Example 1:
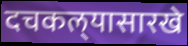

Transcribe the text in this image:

दचकल्यासारखे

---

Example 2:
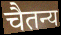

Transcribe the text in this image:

चैतन्य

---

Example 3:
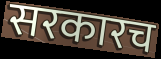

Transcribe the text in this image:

सरकारच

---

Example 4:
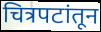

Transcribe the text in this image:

चित्रपटांतून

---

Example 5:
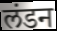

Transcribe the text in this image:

लंडन